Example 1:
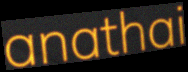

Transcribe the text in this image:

anathai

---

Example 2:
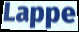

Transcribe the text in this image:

Lappe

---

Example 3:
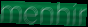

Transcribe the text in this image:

menhir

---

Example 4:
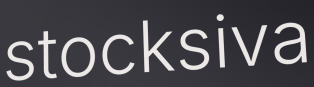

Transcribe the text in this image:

stocksiva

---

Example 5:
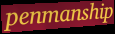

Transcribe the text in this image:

penmanship